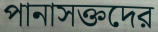
পানাসক্তদের